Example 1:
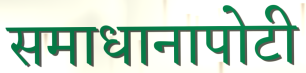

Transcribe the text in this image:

समाधानापोटी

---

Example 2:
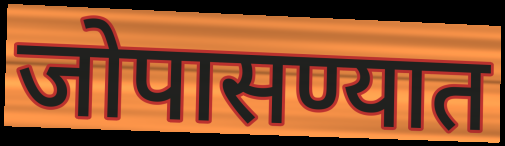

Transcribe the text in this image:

जोपासण्यात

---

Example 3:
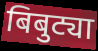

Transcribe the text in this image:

बिबुट्या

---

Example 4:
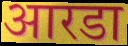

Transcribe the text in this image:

आरडा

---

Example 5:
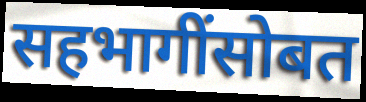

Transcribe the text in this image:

सहभागींसोबत